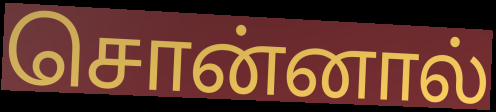
சொன்னால்